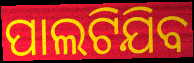
ପାଲଟିଯିବ